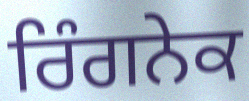
ਰਿੰਗਨੇਕ